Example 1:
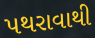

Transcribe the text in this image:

પથરાવાથી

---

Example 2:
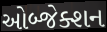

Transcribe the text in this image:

ઓબ્જેક્શન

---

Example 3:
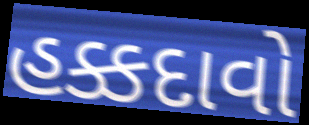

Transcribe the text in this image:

હક્કદાવો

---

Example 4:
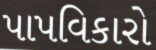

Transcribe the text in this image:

પાપવિકારો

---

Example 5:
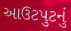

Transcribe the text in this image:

આઉટપુટનું